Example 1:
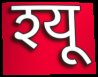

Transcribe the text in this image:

श्यू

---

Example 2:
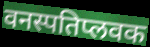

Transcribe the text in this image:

वनस्पतिप्लवक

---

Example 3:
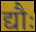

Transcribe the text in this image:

द्यौः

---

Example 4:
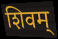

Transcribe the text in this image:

शिवम्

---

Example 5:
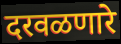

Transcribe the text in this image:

दरवळणारे